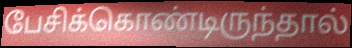
பேசிக்கொண்டிருந்தால்